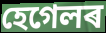
হেগেলৰ